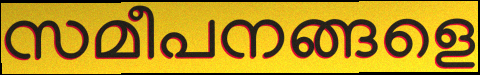
സമീപനങ്ങളെ